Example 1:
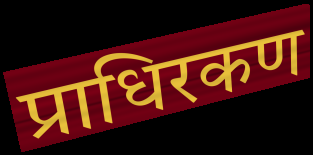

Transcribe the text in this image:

प्राधिरकण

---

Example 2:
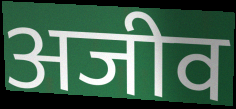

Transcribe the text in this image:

अजीव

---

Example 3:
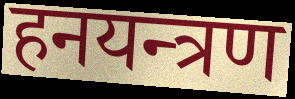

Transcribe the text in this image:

हनयन्त्रण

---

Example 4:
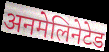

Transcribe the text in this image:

अनमेलिनेटेड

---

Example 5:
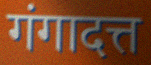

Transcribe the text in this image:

गंगादत्त